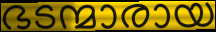
ഭടന്മാരായ